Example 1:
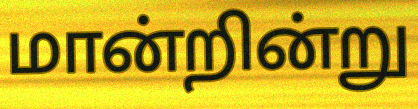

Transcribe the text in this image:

மான்றின்று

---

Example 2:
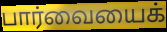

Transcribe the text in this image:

பார்வையைக்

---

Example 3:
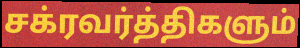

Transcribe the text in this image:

சக்ரவர்த்திகளும்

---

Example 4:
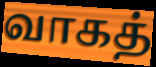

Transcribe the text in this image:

வாகத்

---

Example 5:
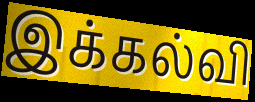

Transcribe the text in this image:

இக்கல்வி